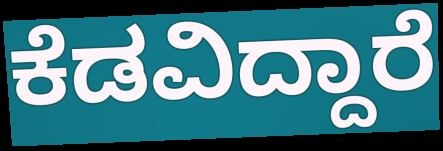
ಕೆಡವಿದ್ದಾರೆ